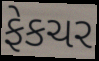
ફેકચર